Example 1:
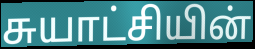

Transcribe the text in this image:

சுயாட்சியின்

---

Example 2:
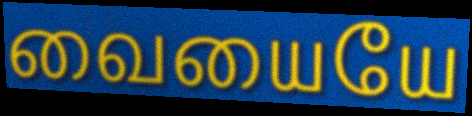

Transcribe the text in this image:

வையையே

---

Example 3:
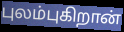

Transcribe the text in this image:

புலம்புகிறான்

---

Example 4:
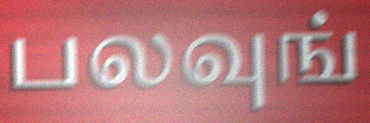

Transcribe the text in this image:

பலவுங்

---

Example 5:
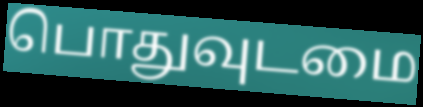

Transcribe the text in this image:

பொதுவுடமை